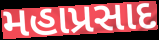
મહાપ્રસાદ